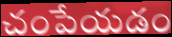
చంపేయడం